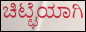
ಚಿಟ್ಟೆಯಾಗಿ